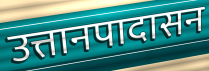
उत्तानपादासन